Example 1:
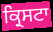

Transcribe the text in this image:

ਕ੍ਰਿਸਟਾ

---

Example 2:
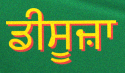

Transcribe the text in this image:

ਡੀਸੂਜ਼ਾ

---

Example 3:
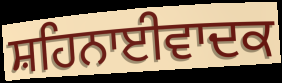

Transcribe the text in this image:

ਸ਼ਹਿਨਾਈਵਾਦਕ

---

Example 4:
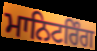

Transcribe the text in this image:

ਮਾਨਿਟਰਿੰਗ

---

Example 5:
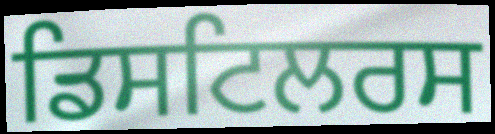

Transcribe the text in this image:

ਡਿਸਟਿਲਰਸ